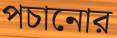
পচানোর